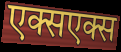
एक्सएक्स